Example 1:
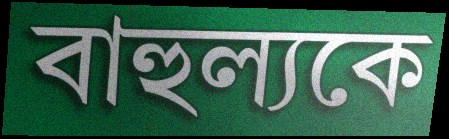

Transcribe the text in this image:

বাহুল্যকে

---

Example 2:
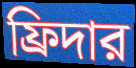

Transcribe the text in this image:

ফ্রিদার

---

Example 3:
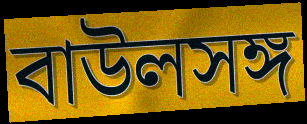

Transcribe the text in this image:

বাউলসঙ্গ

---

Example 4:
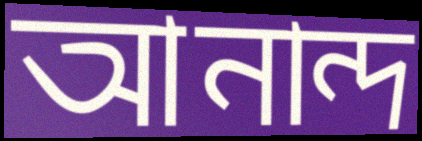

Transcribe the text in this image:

আনান্দ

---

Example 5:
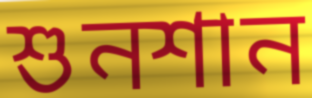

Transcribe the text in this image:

শুনশান